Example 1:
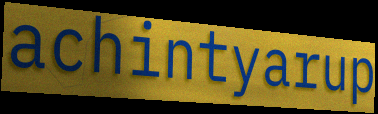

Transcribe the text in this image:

achintyarup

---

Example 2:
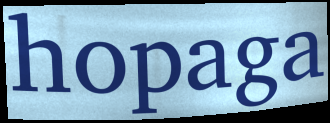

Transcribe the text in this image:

hopaga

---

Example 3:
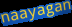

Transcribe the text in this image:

naayagan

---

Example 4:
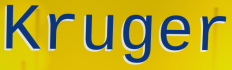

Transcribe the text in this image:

Kruger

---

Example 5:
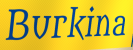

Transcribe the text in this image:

Burkina